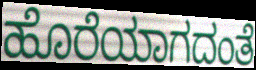
ಹೊರೆಯಾಗದಂತೆ